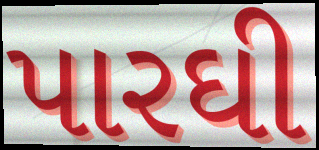
પારઘી